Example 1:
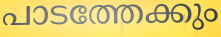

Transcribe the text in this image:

പാടത്തേക്കും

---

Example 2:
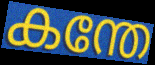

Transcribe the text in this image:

കന്തേ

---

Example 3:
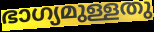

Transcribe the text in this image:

ഭാഗ്യമുള്ളതു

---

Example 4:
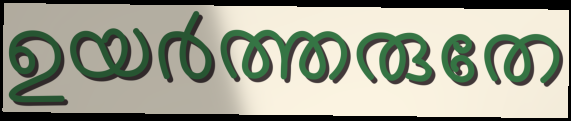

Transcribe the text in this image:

ഉയർത്തരുതേ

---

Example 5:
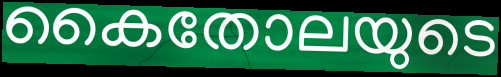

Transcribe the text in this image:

കൈതോലയുടെ